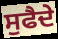
ਸੁਫੈਦੇ